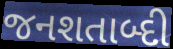
જનશતાબ્દી